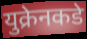
युक्रेनकडे